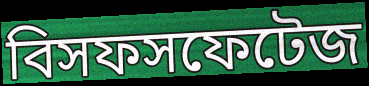
বিসফসফেটেজ